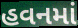
હવનમાં